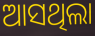
ଆସଥିଲା